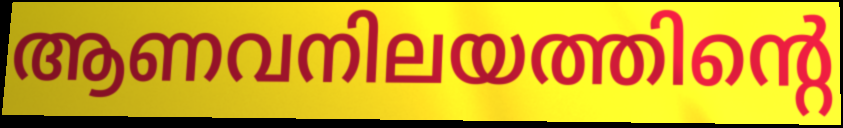
ആണവനിലയത്തിന്റെ